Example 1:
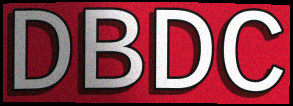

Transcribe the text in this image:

DBDC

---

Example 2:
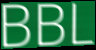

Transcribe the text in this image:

BBL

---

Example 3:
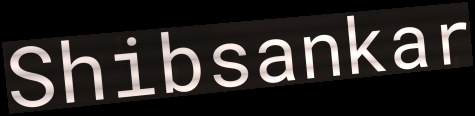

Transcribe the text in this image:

Shibsankar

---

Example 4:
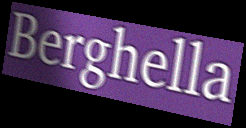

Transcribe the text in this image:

Berghella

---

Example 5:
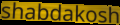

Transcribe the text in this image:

shabdakosh